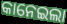
କାନେଇଲା